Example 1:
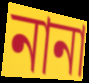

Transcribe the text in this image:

নানা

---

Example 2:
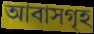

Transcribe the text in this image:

আবাসগৃহ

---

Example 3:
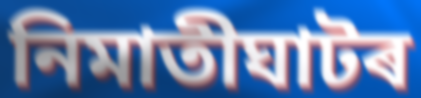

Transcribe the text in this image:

নিমাতীঘাটৰ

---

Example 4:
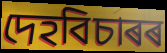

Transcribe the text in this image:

দেহবিচাৰৰ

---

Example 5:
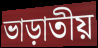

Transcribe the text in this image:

ভাড়াতীয়